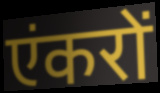
एंकरों